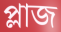
প্লাজ